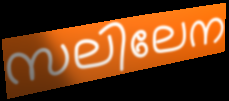
സലിലേന